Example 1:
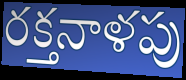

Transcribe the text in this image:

రక్తనాళపు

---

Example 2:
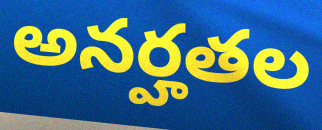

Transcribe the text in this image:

అనర్హతల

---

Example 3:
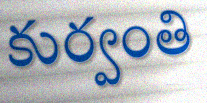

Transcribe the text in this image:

కుర్వంతి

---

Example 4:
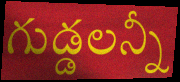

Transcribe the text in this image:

గుడ్డలన్నీ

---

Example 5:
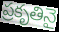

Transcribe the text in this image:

ప్రకృతినై